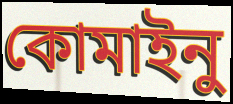
কোমাইনু